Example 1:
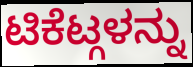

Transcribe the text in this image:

ಟಿಕೆಟ್ಗಳನ್ನು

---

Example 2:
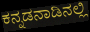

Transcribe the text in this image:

ಕನ್ನಡನಾಡಿನಲ್ಲಿ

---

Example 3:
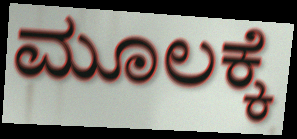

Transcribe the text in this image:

ಮೂಲಕ್ಕೆ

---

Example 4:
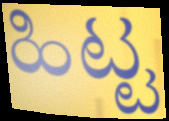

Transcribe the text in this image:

ಹಿಟ್ಟ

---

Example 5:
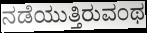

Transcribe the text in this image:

ನಡೆಯುತ್ತಿರುವಂಥ